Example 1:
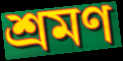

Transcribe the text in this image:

শ্রমণ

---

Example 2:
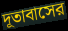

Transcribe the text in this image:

দূতাবাসের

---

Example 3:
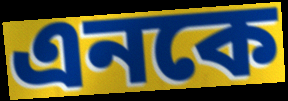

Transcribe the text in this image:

এনকে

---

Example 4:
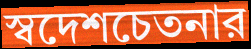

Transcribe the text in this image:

স্বদেশচেতনার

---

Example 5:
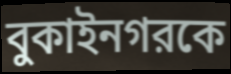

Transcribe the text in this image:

বুকাইনগরকে